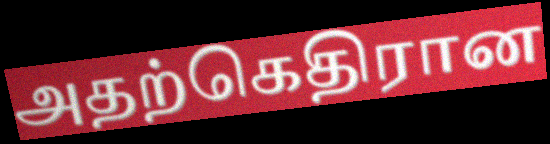
அதற்கெதிரான